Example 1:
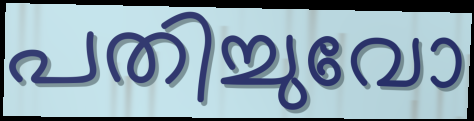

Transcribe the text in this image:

പതിച്ചുവോ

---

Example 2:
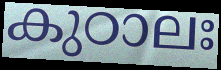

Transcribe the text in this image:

കുഠാലഃ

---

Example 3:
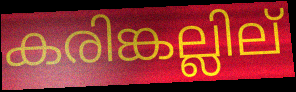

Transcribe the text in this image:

കരിങ്കല്ലില്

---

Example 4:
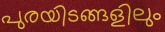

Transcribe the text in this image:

പുരയിടങ്ങളിലും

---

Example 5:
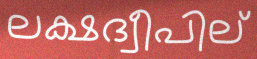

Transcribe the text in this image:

ലക്ഷദ്വീപില്